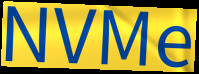
NVMe